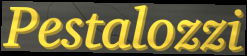
Pestalozzi